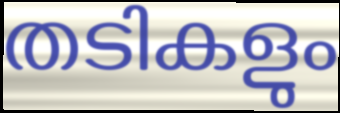
തടികളും